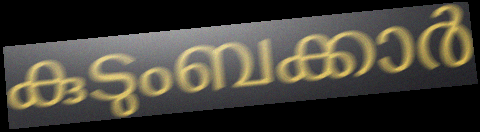
കുടുംബക്കാർ